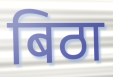
बिठा